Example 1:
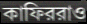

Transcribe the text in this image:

কাফিররাও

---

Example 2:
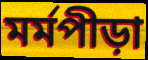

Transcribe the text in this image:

মর্মপীড়া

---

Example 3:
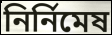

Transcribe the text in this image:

নির্নিমেষ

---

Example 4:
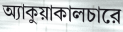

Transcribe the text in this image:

অ্যাকুয়াকালচারে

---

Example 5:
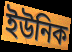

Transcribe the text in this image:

ইউনিক